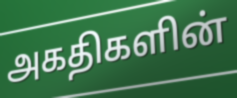
அகதிகளின்